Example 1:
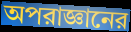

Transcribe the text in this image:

অপরাজ্ঞানের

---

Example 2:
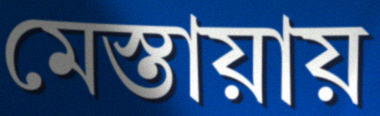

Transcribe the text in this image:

মেস্তায়ায়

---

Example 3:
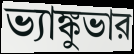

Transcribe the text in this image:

ভ্যাঙ্কুভার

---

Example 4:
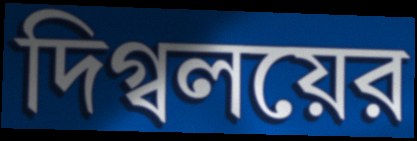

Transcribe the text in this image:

দিগ্বলয়ের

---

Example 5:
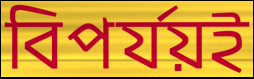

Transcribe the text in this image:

বিপর্যয়ই